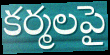
కర్మలపై